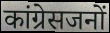
कांग्रेसजनों